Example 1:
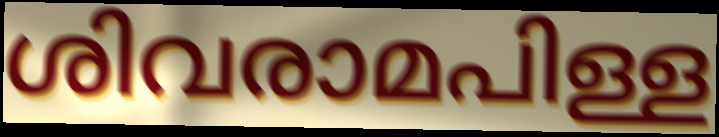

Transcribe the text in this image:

ശിവരാമപിള്ള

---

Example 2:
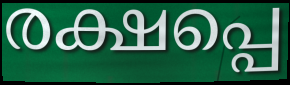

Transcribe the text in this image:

രക്ഷപ്പെ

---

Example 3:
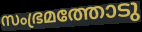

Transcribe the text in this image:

സംഭ്രമത്തോടു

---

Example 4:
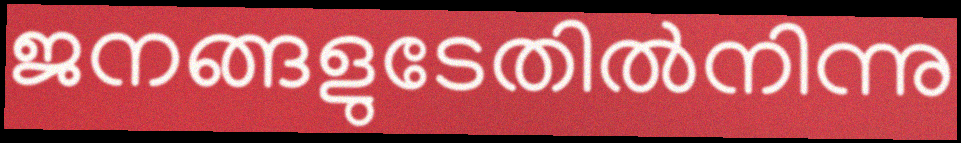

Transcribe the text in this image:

ജനങ്ങളുടേതിൽനിന്നു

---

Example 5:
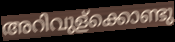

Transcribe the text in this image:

അറിവുള്ക്കൊണ്ടു